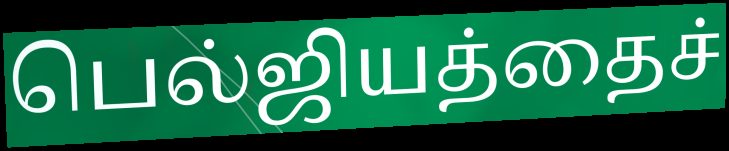
பெல்ஜியத்தைச்